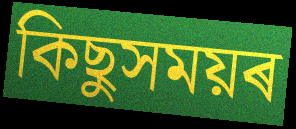
কিছুসময়ৰ